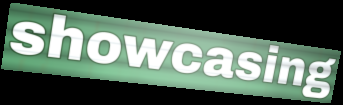
showcasing